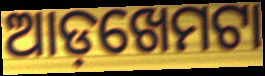
ଆଡ଼ଖେମଟା